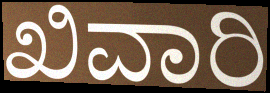
ಖಿವಾರಿ